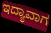
ಇದ್ಯಾವಾಗ